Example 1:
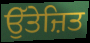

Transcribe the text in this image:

ਉੱਤੇਜ਼ਿਤ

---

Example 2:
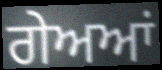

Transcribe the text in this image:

ਗੇਅਆਂ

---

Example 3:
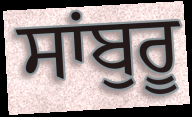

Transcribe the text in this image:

ਸਾਂਬੁਰੂ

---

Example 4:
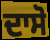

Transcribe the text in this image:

ਦਾਸੋ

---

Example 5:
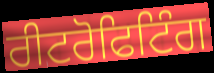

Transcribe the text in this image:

ਰੀਟਰੋਫਿਟਿੰਗ